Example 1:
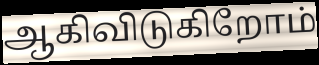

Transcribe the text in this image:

ஆகிவிடுகிறோம்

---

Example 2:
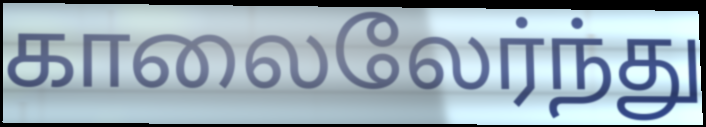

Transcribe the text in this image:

காலைலேர்ந்து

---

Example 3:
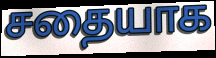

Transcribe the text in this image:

சதையாக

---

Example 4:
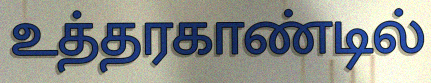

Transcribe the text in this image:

உத்தரகாண்டில்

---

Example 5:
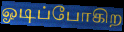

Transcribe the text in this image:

ஓடிப்போகிற